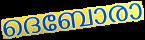
ദെബോരാ